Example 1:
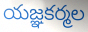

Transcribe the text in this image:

యజ్ఞకర్మల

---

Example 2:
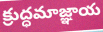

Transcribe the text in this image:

క్రుద్ధమాజ్ఞాయ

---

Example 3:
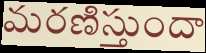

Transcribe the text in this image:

మరణిస్తుందా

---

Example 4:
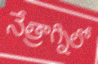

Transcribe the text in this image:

నేత్రాగ్నిలో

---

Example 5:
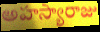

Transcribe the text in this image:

అహస్యారాజు